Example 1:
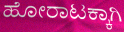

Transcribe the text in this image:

ಹೋರಾಟಕ್ಕಾಗಿ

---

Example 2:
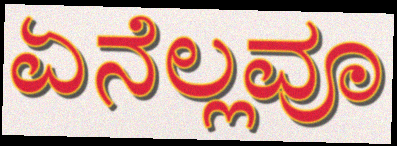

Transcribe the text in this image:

ಏನೆಲ್ಲವೂ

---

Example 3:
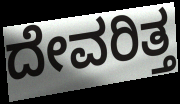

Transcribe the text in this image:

ದೇವರಿತ್ತ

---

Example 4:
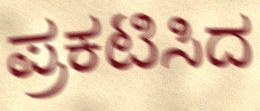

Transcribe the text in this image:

ಪ್ರಕಟಿಸಿದ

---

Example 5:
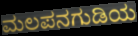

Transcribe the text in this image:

ಮಲಪನಗುಡಿಯ